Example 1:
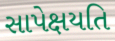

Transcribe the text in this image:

સાપેક્ષયતિ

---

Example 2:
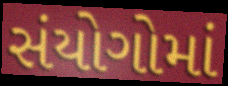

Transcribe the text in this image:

સંયોગોમાં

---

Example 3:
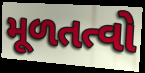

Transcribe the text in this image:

મૂળતત્વો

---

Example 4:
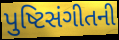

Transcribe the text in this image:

પુષ્ટિસંગીતની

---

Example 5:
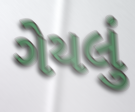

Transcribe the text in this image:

ગેયલું